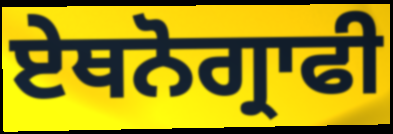
ਏਥਨੋਗ੍ਰਾਫੀ